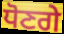
ਧੋਣਗੇ